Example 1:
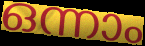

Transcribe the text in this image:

ഒന്നാം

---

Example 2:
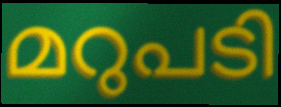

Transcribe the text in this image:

മറുപടി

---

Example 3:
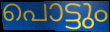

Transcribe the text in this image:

പൊട്ടും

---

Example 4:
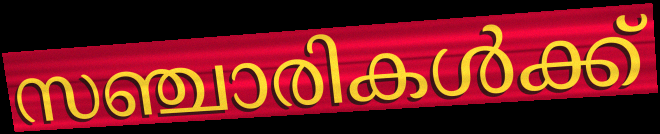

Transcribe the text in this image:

സഞ്ചാരികൾക്ക്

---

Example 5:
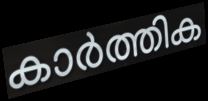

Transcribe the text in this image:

കാർത്തിക